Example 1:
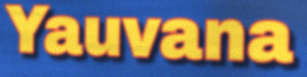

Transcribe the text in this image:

Yauvana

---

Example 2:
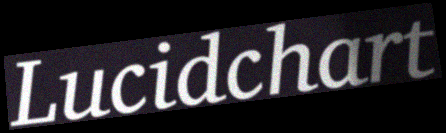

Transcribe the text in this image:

Lucidchart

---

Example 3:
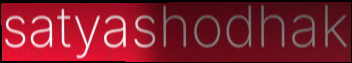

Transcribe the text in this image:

satyashodhak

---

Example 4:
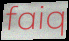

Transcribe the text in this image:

faiq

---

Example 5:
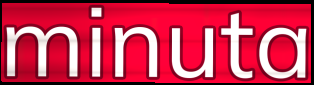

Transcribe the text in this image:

minuta